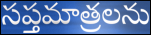
సప్తమాత్రలను